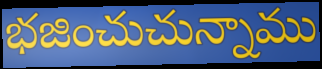
భజించుచున్నాము